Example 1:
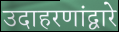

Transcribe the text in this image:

उदाहरणांद्वारे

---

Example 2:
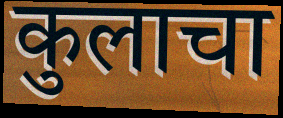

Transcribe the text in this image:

कुलाचा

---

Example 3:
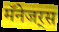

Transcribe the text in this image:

मॅनेजर्स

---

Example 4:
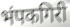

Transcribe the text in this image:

भंपकगिरी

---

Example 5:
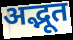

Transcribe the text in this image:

अद्भूत